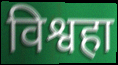
विश्वहा